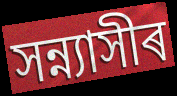
সন্ন্যাসীৰ